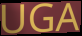
UGA